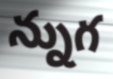
న్నుగ